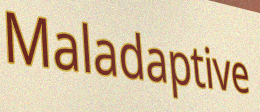
Maladaptive